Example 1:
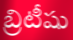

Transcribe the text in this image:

బ్రిటీషు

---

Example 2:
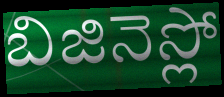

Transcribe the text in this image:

బిజినెస్లో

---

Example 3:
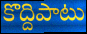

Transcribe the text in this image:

కొద్దిపాటు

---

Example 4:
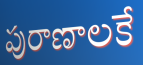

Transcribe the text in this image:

పురాణాలకే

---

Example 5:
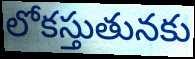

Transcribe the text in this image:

లోకస్తుతునకు